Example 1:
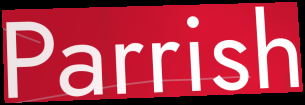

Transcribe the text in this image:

Parrish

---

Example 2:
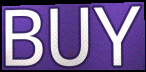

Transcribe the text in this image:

BUY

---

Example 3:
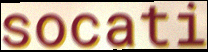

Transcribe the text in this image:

socati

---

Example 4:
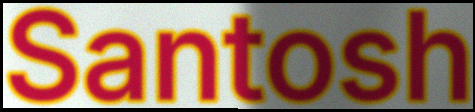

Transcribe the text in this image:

Santosh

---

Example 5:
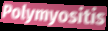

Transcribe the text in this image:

Polymyositis